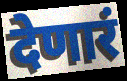
देणारं